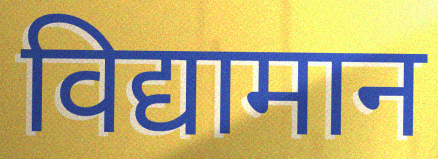
विद्यामान